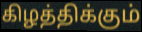
கிழத்திக்கும்